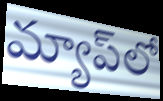
మ్యాప్‌లో